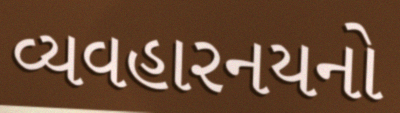
વ્યવહારનયનો